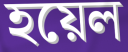
হয়েল